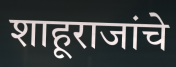
शाहूराजांचे